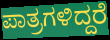
ಪಾತ್ರಗಳಿದ್ದರೆ